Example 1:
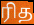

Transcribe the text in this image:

ரித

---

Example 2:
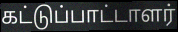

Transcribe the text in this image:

கட்டுப்பாட்டாளர்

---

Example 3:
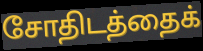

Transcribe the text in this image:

சோதிடத்தைக்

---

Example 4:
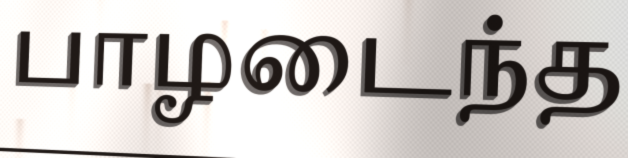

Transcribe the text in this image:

பாழடைந்த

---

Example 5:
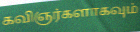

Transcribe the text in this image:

கவிஞர்களாகவும்